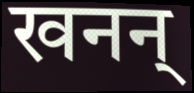
खनन्